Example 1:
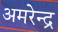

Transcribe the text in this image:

अमरेन्द्र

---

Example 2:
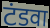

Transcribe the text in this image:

टंडवा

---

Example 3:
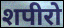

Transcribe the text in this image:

शपीरो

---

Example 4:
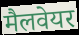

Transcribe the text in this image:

मैलवेयर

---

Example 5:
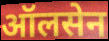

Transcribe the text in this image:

ऑलसेन